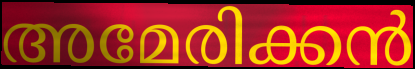
അമേരിക്കൻ